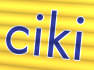
ciki